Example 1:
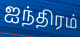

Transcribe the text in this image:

ஐந்திரம்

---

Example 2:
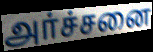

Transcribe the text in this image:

அர்ச்சனை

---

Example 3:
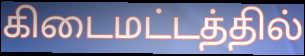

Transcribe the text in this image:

கிடைமட்டத்தில்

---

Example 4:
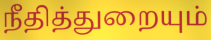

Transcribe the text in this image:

நீதித்துறையும்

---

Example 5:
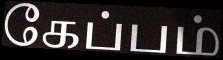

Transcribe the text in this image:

கேப்பம்